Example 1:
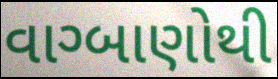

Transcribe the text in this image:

વાગ્બાણોથી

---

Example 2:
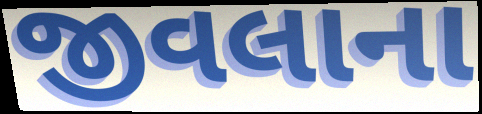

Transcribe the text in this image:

જીવલાના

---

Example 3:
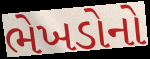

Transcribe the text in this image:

ભેખડોનો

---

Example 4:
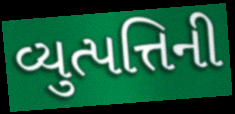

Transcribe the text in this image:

વ્યુત્પત્તિની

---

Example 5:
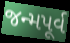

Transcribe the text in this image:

જન્મપૂર્વ